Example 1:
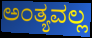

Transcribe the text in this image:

ಅಂತ್ಯವಲ್ಲ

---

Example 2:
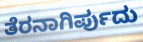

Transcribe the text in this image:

ತೆರನಾಗಿರ್ಪುದು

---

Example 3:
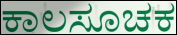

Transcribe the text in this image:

ಕಾಲಸೂಚಕ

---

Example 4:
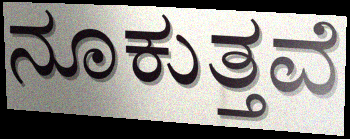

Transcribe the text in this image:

ನೂಕುತ್ತವೆ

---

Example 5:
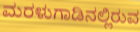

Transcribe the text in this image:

ಮರಳುಗಾಡಿನಲ್ಲಿರುವ